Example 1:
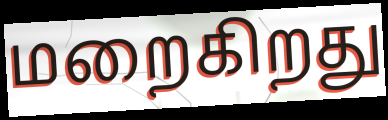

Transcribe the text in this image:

மறைகிறது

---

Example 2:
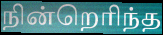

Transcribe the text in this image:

நின்றெரிந்த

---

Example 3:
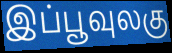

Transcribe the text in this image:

இப்பூவுலகு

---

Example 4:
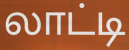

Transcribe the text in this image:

லாட்டி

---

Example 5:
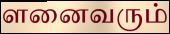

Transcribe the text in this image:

ளனைவரும்